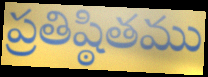
ప్రతిష్ఠితము